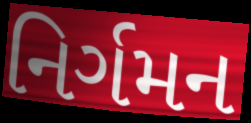
નિર્ગમન